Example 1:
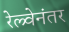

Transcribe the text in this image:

रेल्वेनंतर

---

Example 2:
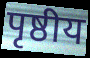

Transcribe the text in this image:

पृष्ठीय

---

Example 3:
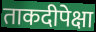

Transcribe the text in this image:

ताकदीपेक्षा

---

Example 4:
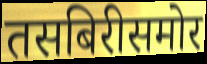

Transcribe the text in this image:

तसबिरीसमोर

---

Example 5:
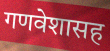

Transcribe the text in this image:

गणवेशासह